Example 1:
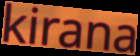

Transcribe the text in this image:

kirana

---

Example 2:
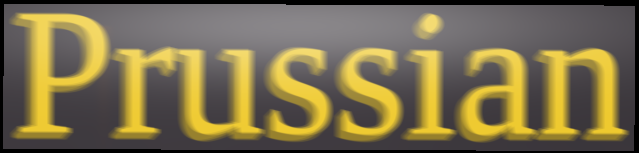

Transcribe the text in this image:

Prussian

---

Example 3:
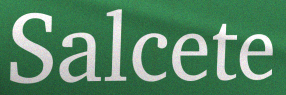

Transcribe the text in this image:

Salcete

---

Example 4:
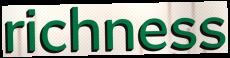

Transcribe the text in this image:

richness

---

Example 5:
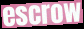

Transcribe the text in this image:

escrow